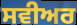
ਸਵੀਅਰ